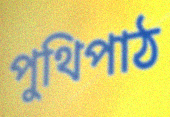
পুথিপাঠ